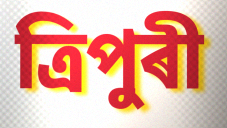
ত্ৰিপুৰী